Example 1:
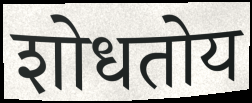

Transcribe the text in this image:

शोधतोय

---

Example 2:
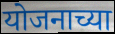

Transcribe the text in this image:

योजनाच्या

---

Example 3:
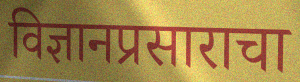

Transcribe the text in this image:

विज्ञानप्रसाराचा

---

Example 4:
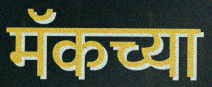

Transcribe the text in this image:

मॅकच्या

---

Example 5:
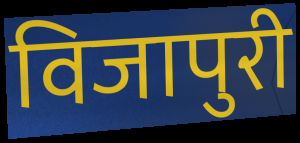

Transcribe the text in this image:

विजापुरी